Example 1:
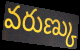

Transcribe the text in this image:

వరుణ్కు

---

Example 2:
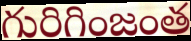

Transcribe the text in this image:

గురిగింజంత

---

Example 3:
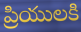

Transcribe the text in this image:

ప్రియులకి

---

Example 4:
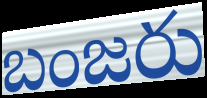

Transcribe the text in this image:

బంజరు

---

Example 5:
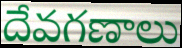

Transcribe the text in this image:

దేవగణాలు